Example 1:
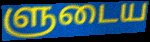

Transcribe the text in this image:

ளுடைய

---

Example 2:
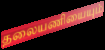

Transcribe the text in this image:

தலையணியையும்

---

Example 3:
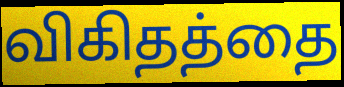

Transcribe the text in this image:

விகிதத்தை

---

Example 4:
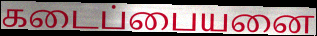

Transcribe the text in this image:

கடைப்பையனை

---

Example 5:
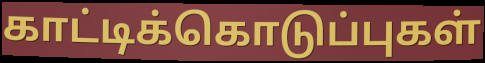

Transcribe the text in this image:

காட்டிக்கொடுப்புகள்